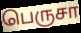
பெருசா